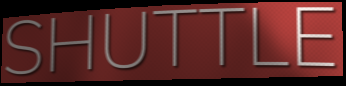
SHUTTLE